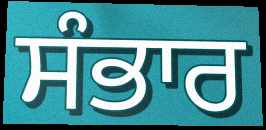
ਸੰਭਾਰ